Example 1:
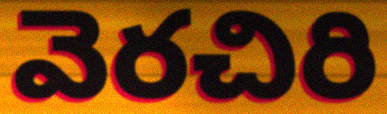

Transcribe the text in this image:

వెరచిరి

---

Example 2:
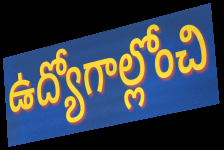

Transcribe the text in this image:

ఉద్యోగాల్లోంచి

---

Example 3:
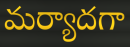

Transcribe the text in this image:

మర్యాదగా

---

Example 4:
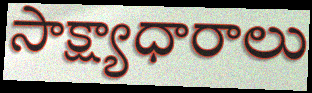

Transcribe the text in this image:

సాక్ష్యాధారాలు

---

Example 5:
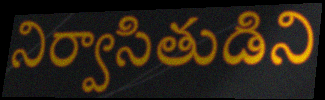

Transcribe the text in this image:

నిర్వాసితుడిని